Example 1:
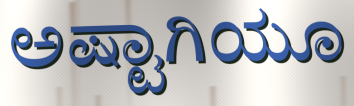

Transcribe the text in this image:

ಅಷ್ಟಾಗಿಯೂ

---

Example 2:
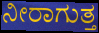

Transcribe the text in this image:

ನೀರಾಗುತ್ತ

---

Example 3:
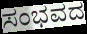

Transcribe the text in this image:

ಸಂಭವದ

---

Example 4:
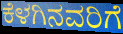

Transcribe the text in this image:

ಕೆಳಗಿನವರಿಗೆ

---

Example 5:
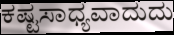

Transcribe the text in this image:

ಕಷ್ಟಸಾಧ್ಯವಾದುದು